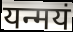
यन्मयं